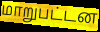
மாறுபட்டன